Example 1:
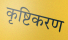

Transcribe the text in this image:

कृष्टिकरण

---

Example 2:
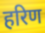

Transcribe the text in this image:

हरिण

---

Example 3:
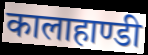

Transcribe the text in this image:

कालाहाण्डी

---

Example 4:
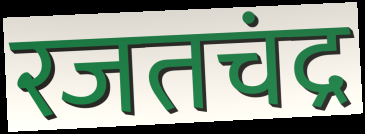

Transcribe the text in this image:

रजतचंद्र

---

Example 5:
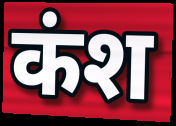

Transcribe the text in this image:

कंश